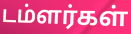
டம்ளர்கள்